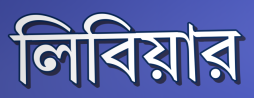
লিবিয়ার